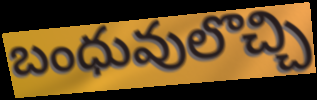
బంధువులొచ్చి